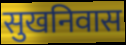
सुखनिवास